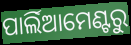
ପାର୍ଲିଆମେଣ୍ଟରୁ